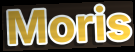
Moris